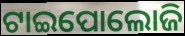
ଟାଇପୋଲୋଜି